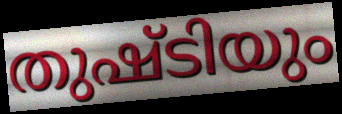
തുഷ്ടിയും